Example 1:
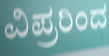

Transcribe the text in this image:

ವಿಪ್ರರಿಂದ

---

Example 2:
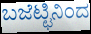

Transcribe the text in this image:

ಬಜೆಟ್ಟಿನಿಂದ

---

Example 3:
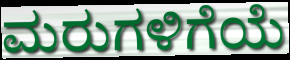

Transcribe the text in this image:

ಮರುಗಳಿಗೆಯೆ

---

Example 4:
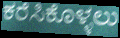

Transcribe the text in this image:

ಕರೆಸಿಕೊಳ್ಳಲು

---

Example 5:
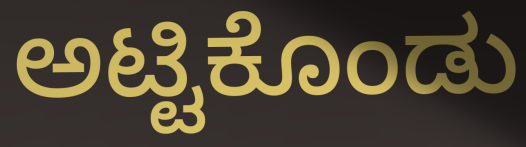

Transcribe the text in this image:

ಅಟ್ಟಿಕೊಂಡು